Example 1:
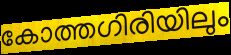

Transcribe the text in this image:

കോത്തഗിരിയിലും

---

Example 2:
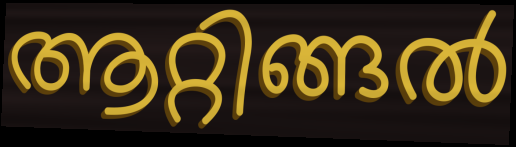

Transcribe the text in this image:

ആറ്റിങ്ങൽ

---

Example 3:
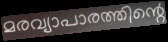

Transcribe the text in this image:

മരവ്യാപാരത്തിന്റെ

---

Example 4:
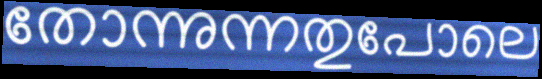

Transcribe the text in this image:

തോന്നുന്നതുപോലെ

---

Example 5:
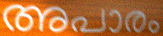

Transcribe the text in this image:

അപാരം